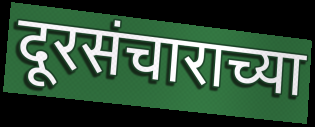
दूरसंचाराच्या